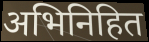
अभिनिहित